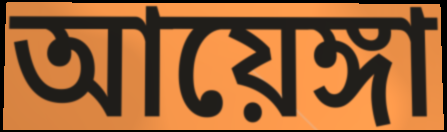
আয়েঙ্গা